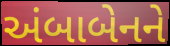
અંબાબેનને